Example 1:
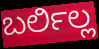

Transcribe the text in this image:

ಬರ್ಲಿಲ್ಲ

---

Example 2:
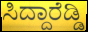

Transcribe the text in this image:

ಸಿದ್ದಾರೆಡ್ಡಿ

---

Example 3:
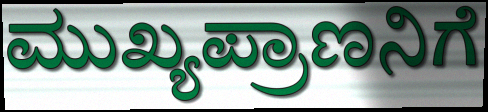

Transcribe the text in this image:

ಮುಖ್ಯಪ್ರಾಣನಿಗೆ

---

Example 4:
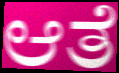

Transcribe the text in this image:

ಆತೆ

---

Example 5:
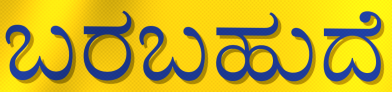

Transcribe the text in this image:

ಬರಬಹುದೆ